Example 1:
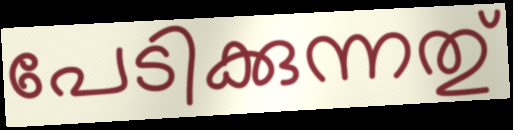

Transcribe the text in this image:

പേടിക്കുന്നതു്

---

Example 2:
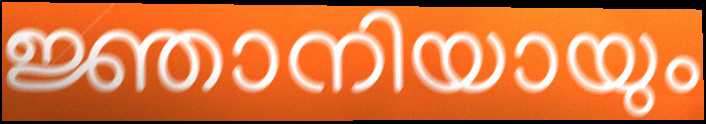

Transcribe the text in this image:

ജ്ഞാനിയായും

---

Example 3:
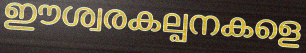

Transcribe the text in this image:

ഈശ്വരകല്പനകളെ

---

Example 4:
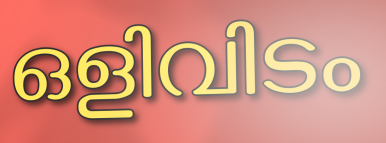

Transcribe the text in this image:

ഒളിവിടം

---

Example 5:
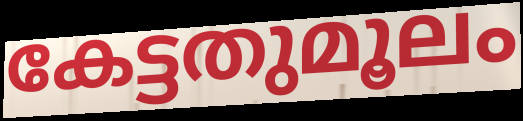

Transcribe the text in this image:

കേട്ടതുമൂലം